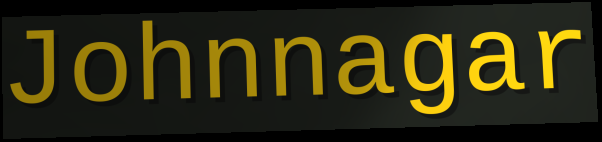
Johnnagar